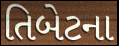
તિબેટના